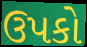
ઉપકો